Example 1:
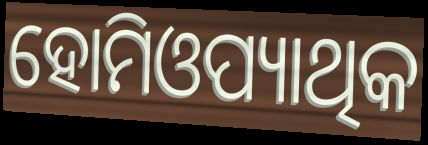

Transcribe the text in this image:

ହୋମିଓପ୍ୟାଥିକ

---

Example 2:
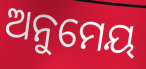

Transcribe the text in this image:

ଅନୁମେୟ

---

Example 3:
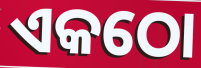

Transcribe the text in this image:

ଏକଠୋ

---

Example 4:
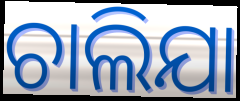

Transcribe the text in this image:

ଚାଲିଯା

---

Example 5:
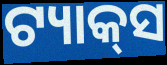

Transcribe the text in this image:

ଟ୍ୟାକ୍‌ସ